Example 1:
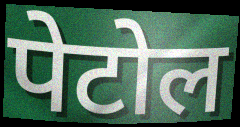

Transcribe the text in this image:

पेटोल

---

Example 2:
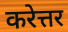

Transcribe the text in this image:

करेत्तर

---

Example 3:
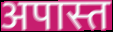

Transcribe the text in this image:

अपास्त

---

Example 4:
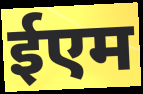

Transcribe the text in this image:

ईएम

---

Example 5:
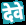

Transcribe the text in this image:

देवे